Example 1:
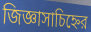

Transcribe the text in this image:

জিজ্ঞাসাচিহ্নের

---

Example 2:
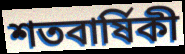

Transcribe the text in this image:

শতবার্ষিকী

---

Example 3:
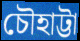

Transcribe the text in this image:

চৌহাট্টা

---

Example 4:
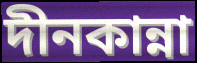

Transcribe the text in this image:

দীনকান্না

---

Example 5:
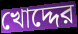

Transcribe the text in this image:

খোদ্দের